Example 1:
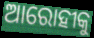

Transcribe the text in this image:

ଆରୋହୀକୁ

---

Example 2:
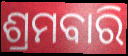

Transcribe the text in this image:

ଶ୍ରମବାରି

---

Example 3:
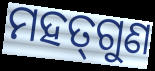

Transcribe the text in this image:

ମହତ୍‍ଗୁଣ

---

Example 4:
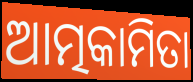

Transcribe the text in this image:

ଆତ୍ମକାମିତା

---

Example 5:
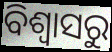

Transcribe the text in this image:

ବିଶ୍ବାସରୁ